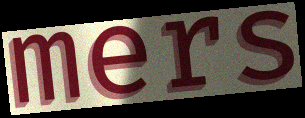
mers